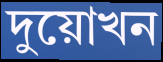
দুয়োখন